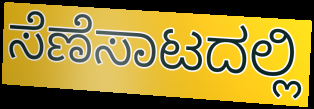
ಸೆಣೆಸಾಟದಲ್ಲಿ